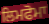
ਲਿਮਫੋਮਾ